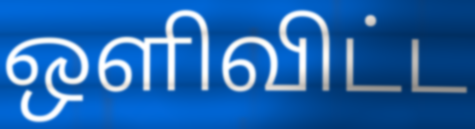
ஒளிவிட்ட